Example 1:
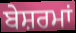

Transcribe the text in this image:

ਬੇਸ਼ਰਮਾਂ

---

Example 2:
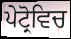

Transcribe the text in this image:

ਪੇਟ੍ਰੋਵਿਚ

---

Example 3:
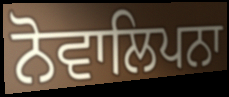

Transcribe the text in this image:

ਨੋਵਾਲਿਪਨਾ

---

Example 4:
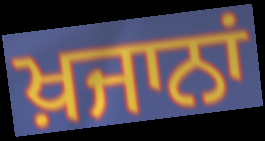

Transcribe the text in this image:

ਖ਼ਜਾਨਾਂ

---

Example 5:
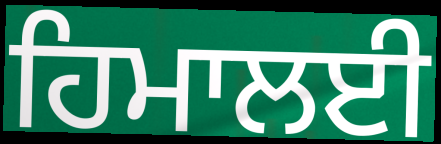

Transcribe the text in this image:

ਹਿਮਾਲਈ